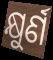
କ୍ଷୁର୍ଣ